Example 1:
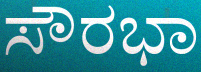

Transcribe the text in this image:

ಸೌರಭಾ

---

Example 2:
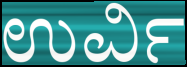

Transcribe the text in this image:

ಉರ್ವಿ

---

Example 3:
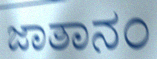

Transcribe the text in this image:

ಜಾತಾನಂ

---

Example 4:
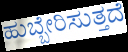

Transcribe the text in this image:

ಹುಬ್ಬೇರಿಸುತ್ತದೆ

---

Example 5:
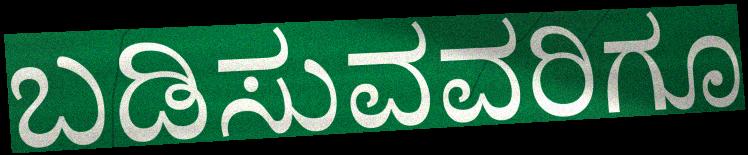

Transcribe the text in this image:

ಬಡಿಸುವವರಿಗೂ